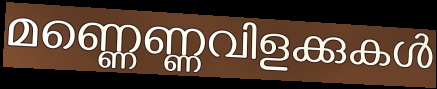
മണ്ണെണ്ണവിളക്കുകൾ